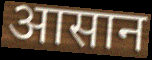
आसान